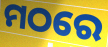
ମଠରେ